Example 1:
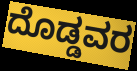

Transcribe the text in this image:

ದೊಡ್ಡವರ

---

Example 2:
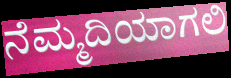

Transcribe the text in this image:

ನೆಮ್ಮದಿಯಾಗಲಿ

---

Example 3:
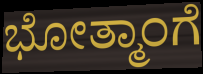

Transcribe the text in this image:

ಭೋತ್ಮಾಂಗೆ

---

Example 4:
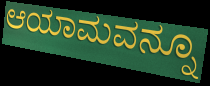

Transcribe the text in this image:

ಆಯಾಮವನ್ನೂ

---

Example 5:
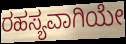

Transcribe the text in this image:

ರಹಸ್ಯವಾಗಿಯೇ